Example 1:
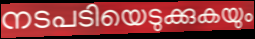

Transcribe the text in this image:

നടപടിയെടുക്കുകയും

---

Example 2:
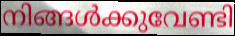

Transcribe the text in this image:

നിങ്ങൾക്കുവേണ്ടി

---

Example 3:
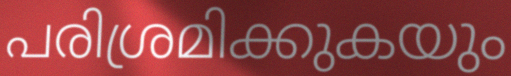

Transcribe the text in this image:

പരിശ്രമിക്കുകയും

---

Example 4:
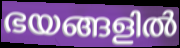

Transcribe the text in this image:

ഭയങ്ങളിൽ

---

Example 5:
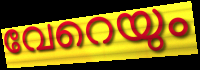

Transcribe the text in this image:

വേറെയും